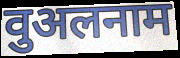
वुअलनाम